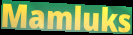
Mamluks